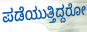
ಪಡೆಯುತ್ತಿದ್ದರೋ